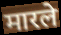
मारले